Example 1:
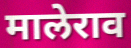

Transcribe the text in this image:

मालेराव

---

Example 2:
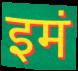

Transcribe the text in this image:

इमं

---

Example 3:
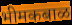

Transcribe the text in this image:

भीमकबाळ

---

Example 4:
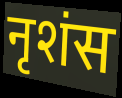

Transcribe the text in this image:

नृशंस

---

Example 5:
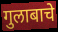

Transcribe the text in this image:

गुलाबाचे